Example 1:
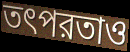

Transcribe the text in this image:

তৎপরতাও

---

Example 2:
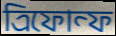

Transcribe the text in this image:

ত্রিফোন্ফ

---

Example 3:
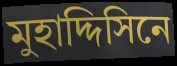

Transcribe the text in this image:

মুহাদ্দিসিনে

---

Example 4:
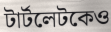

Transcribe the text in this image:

টার্টলেটকেও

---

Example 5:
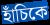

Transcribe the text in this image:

হাঁচিকে